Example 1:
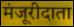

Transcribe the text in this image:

मंजूरीदाता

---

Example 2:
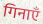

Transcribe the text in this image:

गिनाएँ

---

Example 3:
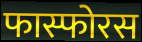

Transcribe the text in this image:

फास्‍फोरस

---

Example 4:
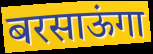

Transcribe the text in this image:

बरसाऊंगा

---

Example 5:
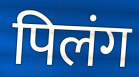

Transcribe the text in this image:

पिलंग